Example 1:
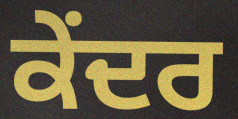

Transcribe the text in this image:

ਕੇੰਦਰ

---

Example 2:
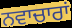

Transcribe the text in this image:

ਨਵਾਚਾਰਾਂ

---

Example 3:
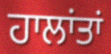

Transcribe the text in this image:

ਹਾਲਾਂਤਾਂ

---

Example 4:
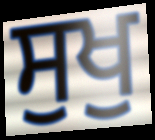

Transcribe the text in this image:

ਸੁਖੁ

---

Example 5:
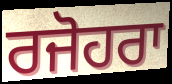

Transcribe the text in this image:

ਰਜੋਹਰਾ